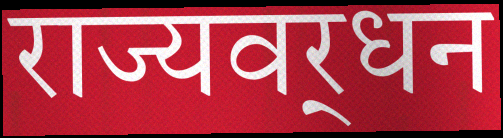
राज्यवर्धन